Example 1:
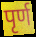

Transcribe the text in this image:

पृर्ण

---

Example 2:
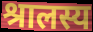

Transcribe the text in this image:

श्रालस्य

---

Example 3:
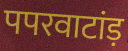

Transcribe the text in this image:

पपरवाटांड़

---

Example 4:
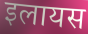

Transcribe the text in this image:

इलायस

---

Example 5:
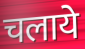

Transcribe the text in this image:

चलाये